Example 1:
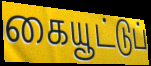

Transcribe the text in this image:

கையூட்டுப்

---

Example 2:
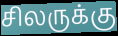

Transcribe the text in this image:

சிலருக்கு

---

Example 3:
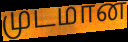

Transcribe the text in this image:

முடமான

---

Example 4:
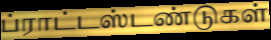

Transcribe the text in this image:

ப்ராட்டஸ்டண்டுகள்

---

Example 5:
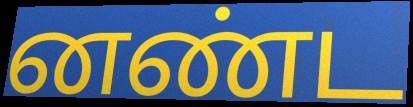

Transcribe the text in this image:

னண்ட